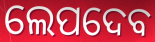
ଲେପଦେବ